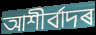
আশীৰ্বাদৰ